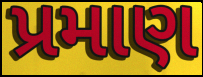
પ્રમાણ